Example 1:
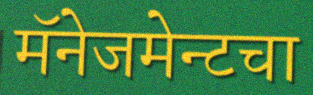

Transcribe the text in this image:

मॅनेजमेन्टचा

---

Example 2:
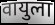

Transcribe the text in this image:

वायुला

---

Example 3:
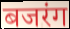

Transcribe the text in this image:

बजरंग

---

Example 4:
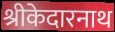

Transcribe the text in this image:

श्रीकेदारनाथ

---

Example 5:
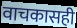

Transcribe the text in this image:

वाचकासही